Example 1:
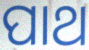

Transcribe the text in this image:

ପାଥ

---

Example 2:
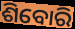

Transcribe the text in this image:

ଶିବୋରି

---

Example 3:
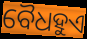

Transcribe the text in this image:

ବୈଧହୁଏ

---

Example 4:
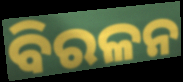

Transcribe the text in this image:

ବିରଳନ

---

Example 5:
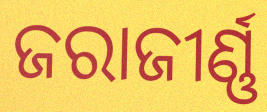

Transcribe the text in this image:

ଜରାଜୀର୍ଣ୍ଣ